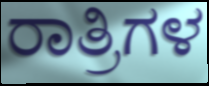
ರಾತ್ರಿಗಳ